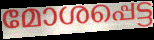
മോശപ്പെട്ട